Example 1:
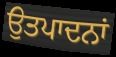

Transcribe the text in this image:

ਉਤਪਾਦਨਾਂ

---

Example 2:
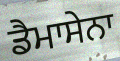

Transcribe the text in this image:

ਡੈਮਾਸੇਨਾ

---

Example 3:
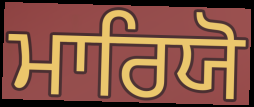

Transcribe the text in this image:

ਮਾਰਿਯੋ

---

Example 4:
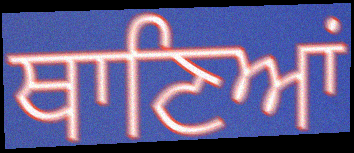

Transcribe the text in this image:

ਥਾਣਿਆਂ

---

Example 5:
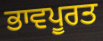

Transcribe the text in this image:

ਭਾਵਪੂਰਤ